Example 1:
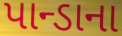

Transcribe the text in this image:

પાન્ડાના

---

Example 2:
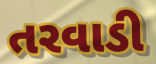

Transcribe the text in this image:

તરવાડી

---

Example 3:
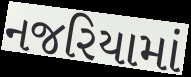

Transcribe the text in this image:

નજરિયામાં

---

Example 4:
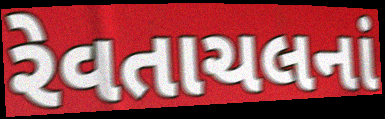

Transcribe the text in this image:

રેવતાચલનાં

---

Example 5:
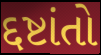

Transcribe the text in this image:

દ્દષ્ટાંતો